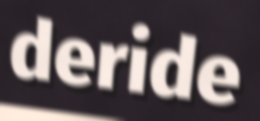
deride